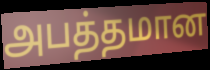
அபத்தமான